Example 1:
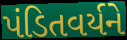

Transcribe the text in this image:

પંડિતવર્યને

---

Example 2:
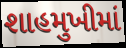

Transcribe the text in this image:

શાહમુખીમાં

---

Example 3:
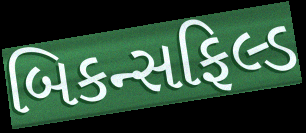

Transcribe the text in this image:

બિકન્સફિલ્ડ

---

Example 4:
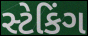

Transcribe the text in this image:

સ્ટેકિંગ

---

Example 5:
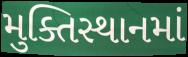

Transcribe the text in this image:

મુક્તિસ્થાનમાં